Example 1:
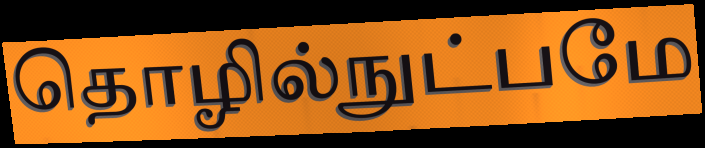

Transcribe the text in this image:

தொழில்நுட்பமே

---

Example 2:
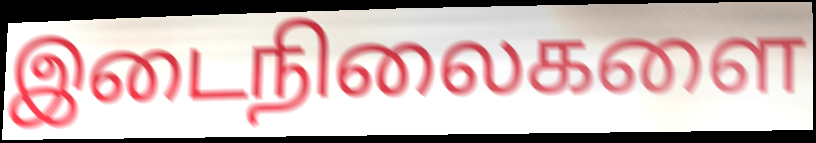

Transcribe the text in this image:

இடைநிலைகளை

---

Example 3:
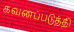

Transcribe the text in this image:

கவனப்படுத்தி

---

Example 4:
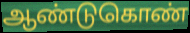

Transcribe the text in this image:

ஆண்டுகொண்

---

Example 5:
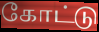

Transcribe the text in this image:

கோட்டு